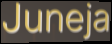
Juneja